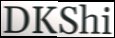
DKShi